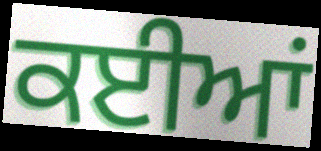
ਕਈਆਂ